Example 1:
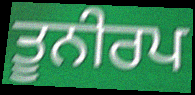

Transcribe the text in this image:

ਤੂਨੀਰਪ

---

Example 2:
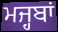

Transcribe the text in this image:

ਮਜ੍ਹਬਾਂ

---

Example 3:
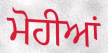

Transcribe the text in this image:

ਮੋਹੀਆਂ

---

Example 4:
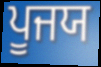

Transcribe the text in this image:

ਪੂਜਯ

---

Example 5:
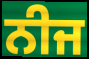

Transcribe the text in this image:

ਨੀਜ